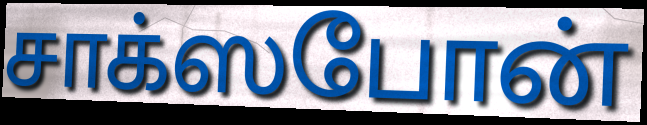
சாக்ஸபோன்